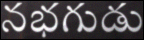
నభగుడు